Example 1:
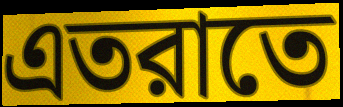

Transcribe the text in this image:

এতরাতে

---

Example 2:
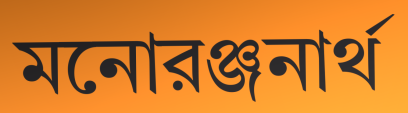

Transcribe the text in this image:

মনোরঞ্জনার্থ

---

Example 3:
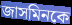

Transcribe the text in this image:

জাসমিনকে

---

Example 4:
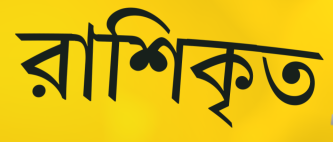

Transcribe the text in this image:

রাশিকৃত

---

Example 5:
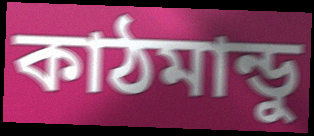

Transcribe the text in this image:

কাঠমান্ডু